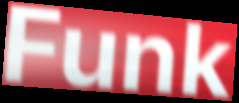
Funk